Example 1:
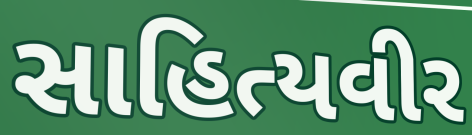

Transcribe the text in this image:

સાહિત્યવીર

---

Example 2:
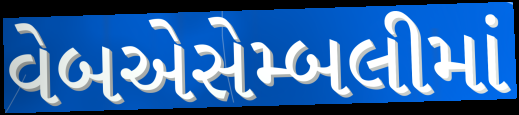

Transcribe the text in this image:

વેબએસેમ્બલીમાં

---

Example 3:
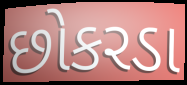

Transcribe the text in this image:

છોકરડા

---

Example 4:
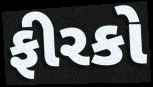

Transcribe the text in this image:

ફીરકો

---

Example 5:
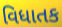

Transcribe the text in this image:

વિધાતક